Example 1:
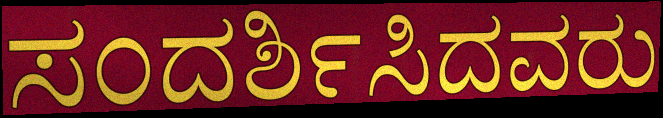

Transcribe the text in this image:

ಸಂದರ್ಶಿಸಿದವರು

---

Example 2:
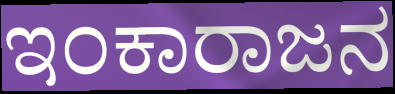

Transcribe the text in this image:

ಇಂಕಾರಾಜನ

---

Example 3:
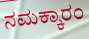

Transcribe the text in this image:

ನಮಕ್ಕಾರಂ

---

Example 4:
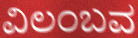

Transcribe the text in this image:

ವಿಲಂಬವ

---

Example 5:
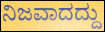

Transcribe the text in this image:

ನಿಜವಾದದ್ದು